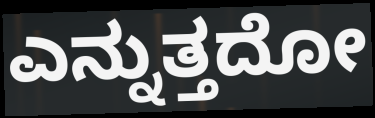
ಎನ್ನುತ್ತದೋ